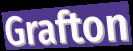
Grafton